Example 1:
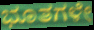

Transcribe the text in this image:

ಭೂತಗಳೇ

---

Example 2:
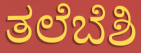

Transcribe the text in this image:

ತಲೆಬೆಶಿ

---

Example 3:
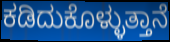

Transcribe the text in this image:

ಕಡಿದುಕೊಳ್ಳುತ್ತಾನೆ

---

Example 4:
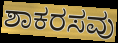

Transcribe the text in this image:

ಶಾಕರಸವು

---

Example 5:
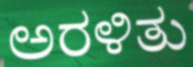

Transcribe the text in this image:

ಅರಳಿತು